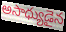
అసాధ్యుడైన